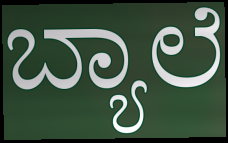
ಬ್ಯಾಲೆ